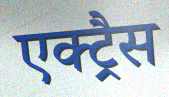
एक्ट्रैस